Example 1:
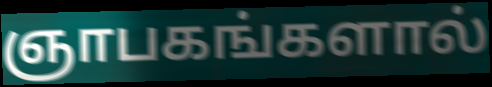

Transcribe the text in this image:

ஞாபகங்களால்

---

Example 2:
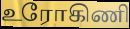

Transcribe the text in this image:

உரோகிணி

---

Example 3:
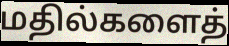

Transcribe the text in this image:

மதில்களைத்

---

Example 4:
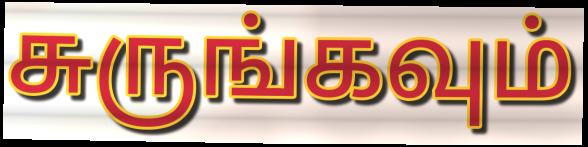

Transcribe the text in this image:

சுருங்கவும்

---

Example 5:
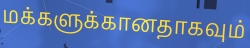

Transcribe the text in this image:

மக்களுக்கானதாகவும்